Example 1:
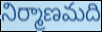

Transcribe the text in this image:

నిర్మాణమది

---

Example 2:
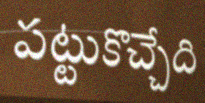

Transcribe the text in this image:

పట్టుకొచ్చేది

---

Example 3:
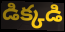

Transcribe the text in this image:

డిక్కడి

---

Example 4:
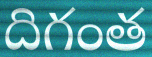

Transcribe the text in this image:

దిగంత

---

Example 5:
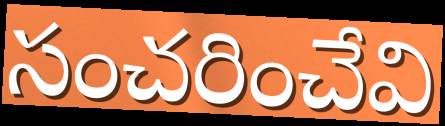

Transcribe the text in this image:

సంచరించేవి